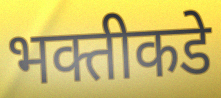
भक्तीकडे